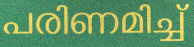
പരിണമിച്ച്